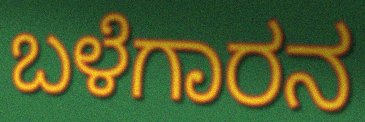
ಬಳೆಗಾರನ